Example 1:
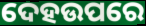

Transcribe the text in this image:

ଦେହଉପରେ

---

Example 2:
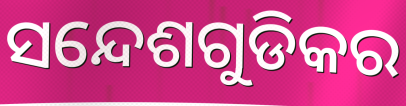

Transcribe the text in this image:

ସନ୍ଦେଶଗୁଡିକର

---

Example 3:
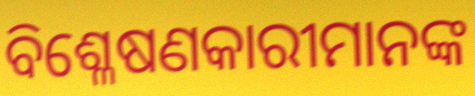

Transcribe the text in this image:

ବିଶ୍ଳେଷଣକାରୀମାନଙ୍କ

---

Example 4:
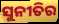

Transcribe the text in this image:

ସୁନୀତିର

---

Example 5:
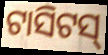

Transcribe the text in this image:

ଟାସିଟସ୍